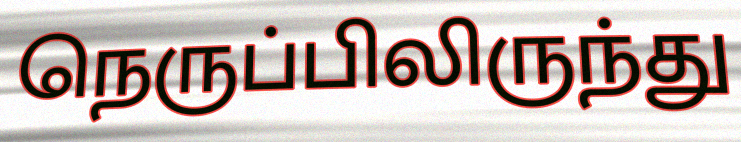
நெருப்பிலிருந்து